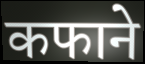
कफाने